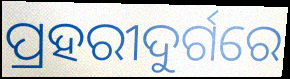
ପ୍ରହରୀଦୁର୍ଗରେ